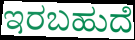
ಇರಬಹುದೆ